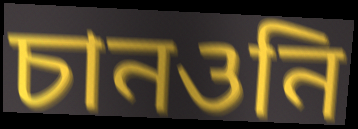
চানওনি